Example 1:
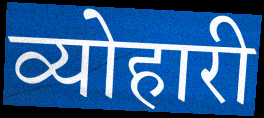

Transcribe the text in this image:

व्योहारी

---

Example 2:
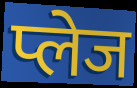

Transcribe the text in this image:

प्‍लेज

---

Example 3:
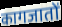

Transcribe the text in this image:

कागजातों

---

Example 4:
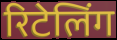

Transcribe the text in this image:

रिटेलिंग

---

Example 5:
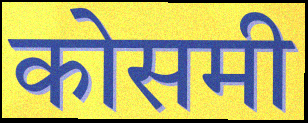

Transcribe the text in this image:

कोसमी